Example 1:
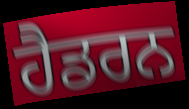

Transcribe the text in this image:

ਹੈਡਰਨ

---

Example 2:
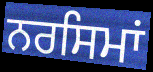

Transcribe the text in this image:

ਨਰਸਿਮਾਂ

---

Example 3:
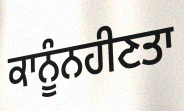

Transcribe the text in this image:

ਕਾਨੂੰਨਹੀਣਤਾ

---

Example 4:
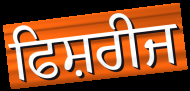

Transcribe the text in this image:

ਫਿਸ਼ਰੀਜ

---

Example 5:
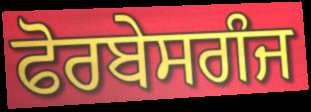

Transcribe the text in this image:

ਫੋਰਬੇਸਗੰਜ